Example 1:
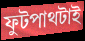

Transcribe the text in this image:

ফুটপাথটাই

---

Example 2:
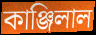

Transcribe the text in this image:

কাঞ্জিলাল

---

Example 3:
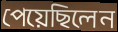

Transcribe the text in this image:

পেয়েছিলেন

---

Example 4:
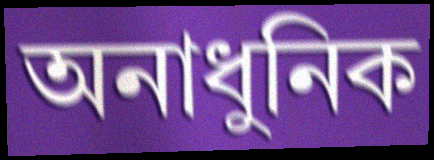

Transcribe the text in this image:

অনাধুনিক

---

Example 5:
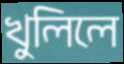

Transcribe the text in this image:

খুলিলে